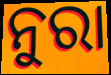
ନୁରା